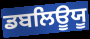
ਡਬਲਿਊਯੂ